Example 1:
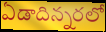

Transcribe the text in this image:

ఏడాదిన్నరలో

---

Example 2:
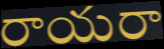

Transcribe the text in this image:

రాయరా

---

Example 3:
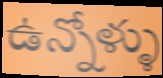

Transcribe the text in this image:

ఉన్నోళ్ళు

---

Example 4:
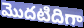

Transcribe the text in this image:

మొదటిదిగా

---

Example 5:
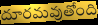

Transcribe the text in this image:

దూరమవుతోంది